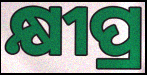
କ୍ଷୀପ୍ର